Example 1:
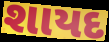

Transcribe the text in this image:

શાયદ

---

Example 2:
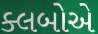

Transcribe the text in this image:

ક્લબોએ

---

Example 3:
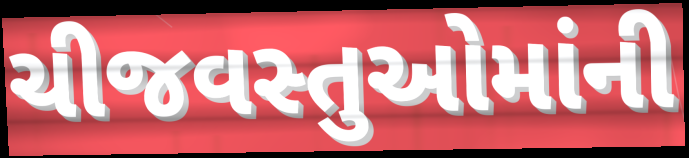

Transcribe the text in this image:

ચીજવસ્તુઓમાંની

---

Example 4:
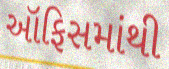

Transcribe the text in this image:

ઑફિસમાંથી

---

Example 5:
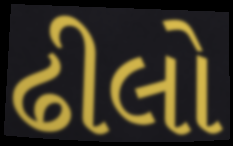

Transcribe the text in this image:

ઢીલો